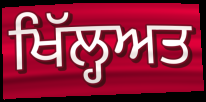
ਖਿੱਲ੍ਹਅਤ